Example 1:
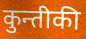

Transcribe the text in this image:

कुन्तीकी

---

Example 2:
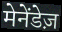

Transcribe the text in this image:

मेनेंडेज़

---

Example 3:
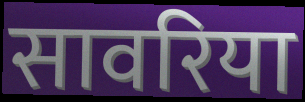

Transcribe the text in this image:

सावरिया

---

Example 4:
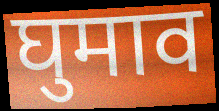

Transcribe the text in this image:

घुमाव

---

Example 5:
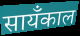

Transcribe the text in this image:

सायँकाल